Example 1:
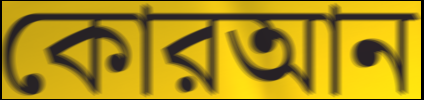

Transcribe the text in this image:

কোরআন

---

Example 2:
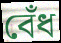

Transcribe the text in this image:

বেঁধ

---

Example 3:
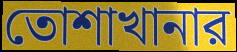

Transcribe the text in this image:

তোশাখানার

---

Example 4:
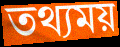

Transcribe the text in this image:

তথ্যময়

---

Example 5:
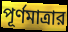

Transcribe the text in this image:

পূর্ণমাত্রার